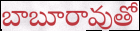
బాబూరావుతో